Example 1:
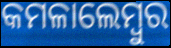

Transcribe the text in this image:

କମଳାଲେମ୍ବୁର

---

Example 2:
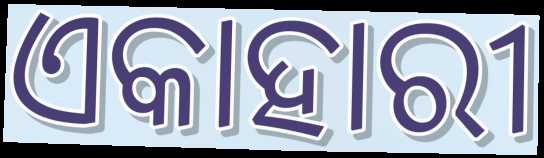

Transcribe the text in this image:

ଏକାହାରୀ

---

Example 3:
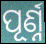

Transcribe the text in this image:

ପୂର୍ଣ୍ନ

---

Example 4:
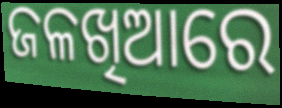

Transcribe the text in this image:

ଜଳଖିଆରେ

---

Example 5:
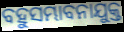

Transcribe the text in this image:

ବହୁସମ୍ଭାବନାଯୁକ୍ତ